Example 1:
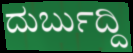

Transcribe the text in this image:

ದುರ್ಬುದ್ದಿ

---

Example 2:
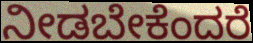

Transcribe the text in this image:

ನೀಡಬೇಕೆಂದರೆ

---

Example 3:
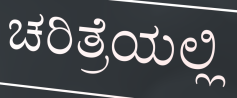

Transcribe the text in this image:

ಚರಿತ್ರೆಯಲ್ಲಿ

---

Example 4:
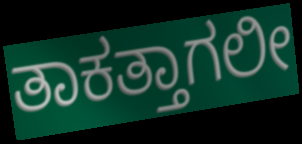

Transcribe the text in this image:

ತಾಕತ್ತಾಗಲೀ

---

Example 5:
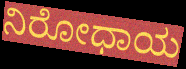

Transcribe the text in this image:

ನಿರೋಧಾಯ